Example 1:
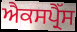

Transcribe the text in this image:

ਐਕਸਪ੍ਰੈੱਸ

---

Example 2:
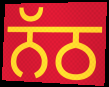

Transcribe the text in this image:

ਨੱਠ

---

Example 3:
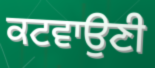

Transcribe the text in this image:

ਕਟਵਾਉਣੀ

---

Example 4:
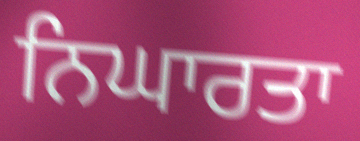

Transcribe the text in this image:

ਨਿਘਾਰਤਾ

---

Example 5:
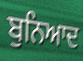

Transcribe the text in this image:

ਬੁਨਿਆਦ